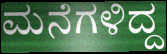
ಮನೆಗಳಿದ್ದ